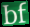
bf